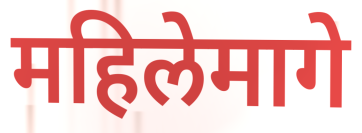
महिलेमागे